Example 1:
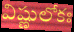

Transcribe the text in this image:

విష్ణులోకః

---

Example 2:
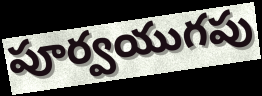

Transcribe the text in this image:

పూర్వయుగపు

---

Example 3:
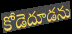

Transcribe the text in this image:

కోడెదూడను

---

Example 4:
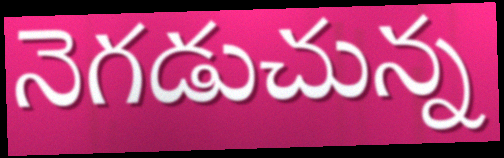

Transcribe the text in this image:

నెగడుచున్న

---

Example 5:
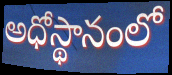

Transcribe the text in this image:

అధోస్థానంలో